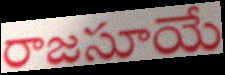
రాజసూయే